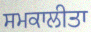
ਸਮਕਾਲੀਤਾ